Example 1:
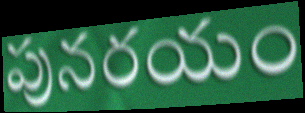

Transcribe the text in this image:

పునరయం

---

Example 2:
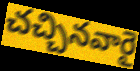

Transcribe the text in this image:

చచ్చినవారై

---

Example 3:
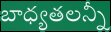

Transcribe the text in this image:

బాధ్యతలన్నీ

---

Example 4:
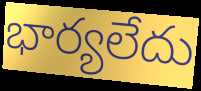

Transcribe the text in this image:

భార్యలేదు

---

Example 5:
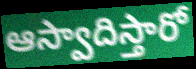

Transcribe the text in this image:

ఆస్వాదిస్తారో